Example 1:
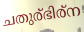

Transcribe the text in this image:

ചതുര്ഭിര്ന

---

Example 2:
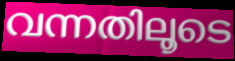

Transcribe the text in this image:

വന്നതിലൂടെ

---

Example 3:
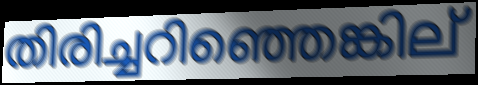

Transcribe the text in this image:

തിരിച്ചറിഞ്ഞെങ്കില്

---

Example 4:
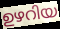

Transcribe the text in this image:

ഉഴറിയ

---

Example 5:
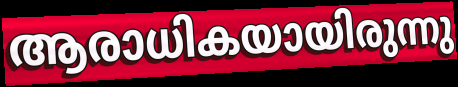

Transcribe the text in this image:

ആരാധികയായിരുന്നു